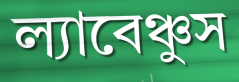
ল্যাবেঞ্চুস